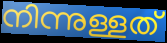
നിന്നുള്ളത്